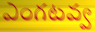
ఎంగటవ్వ